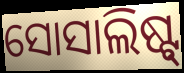
ସୋସାଲିଷ୍ଟ୍